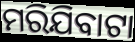
ମରିଯିବାଟା